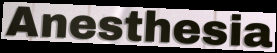
Anesthesia